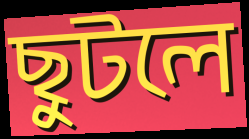
ছুটলে